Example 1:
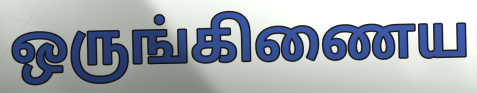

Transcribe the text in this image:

ஒருங்கிணைய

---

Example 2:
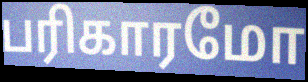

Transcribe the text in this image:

பரிகாரமோ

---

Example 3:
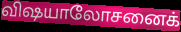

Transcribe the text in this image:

விஷயாலோசனைக்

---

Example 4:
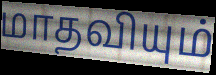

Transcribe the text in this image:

மாதவியும்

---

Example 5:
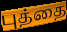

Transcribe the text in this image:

புத்தை